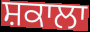
ਸ਼ਕਾਲਾ